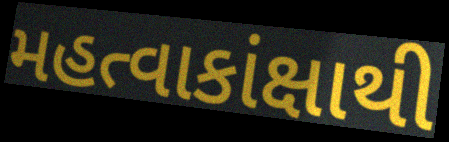
મહત્વાકાંક્ષાથી